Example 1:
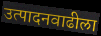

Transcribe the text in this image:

उत्पादनवाढीला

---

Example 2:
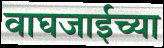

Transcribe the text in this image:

वाघजाईच्या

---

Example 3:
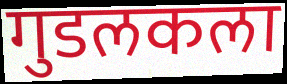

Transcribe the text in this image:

गुडलकला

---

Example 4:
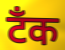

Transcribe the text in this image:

टॅंक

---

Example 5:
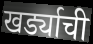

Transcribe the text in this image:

खर्ड्याची